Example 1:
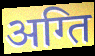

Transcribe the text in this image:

अग्ति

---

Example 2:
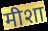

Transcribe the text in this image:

मीशा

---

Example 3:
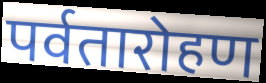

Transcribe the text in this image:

पर्वतारोहण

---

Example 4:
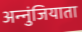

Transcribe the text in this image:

अन्नुंजियाता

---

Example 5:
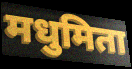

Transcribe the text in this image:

मधुमिता